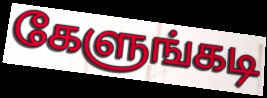
கேளுங்கடி